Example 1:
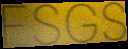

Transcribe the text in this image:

FSGS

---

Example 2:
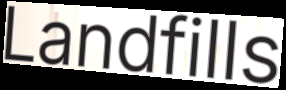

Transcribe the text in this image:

Landfills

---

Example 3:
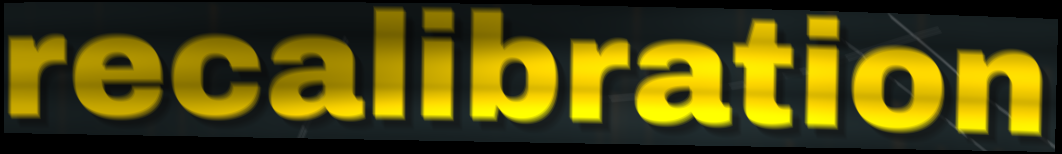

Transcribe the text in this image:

recalibration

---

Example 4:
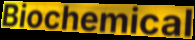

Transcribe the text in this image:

Biochemical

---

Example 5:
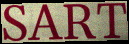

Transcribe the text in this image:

SART